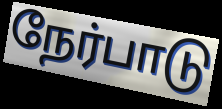
நேர்பாடு